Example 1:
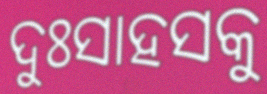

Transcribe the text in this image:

ଦୁଃସାହସକୁ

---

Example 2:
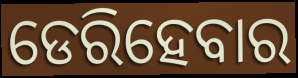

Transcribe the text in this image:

ଡେରିହେବାର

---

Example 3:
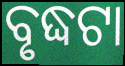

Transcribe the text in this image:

ବୃଦ୍ଧଟା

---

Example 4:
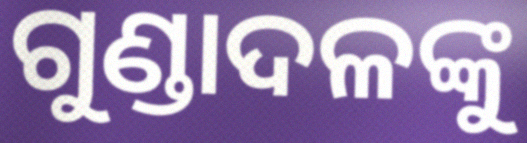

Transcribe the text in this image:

ଗୁଣ୍ଡାଦଳଙ୍କୁ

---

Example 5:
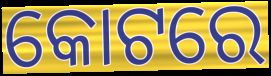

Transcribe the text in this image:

କୋଟରେ